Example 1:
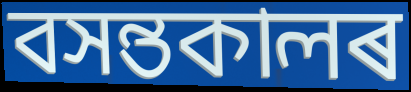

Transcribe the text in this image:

বসন্তকালৰ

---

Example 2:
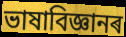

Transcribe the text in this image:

ভাষাবিজ্ঞানৰ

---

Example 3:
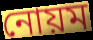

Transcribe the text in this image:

নোয়ম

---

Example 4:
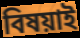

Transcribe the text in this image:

বিষয়াই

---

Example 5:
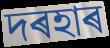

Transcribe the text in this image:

দৰহাৰ